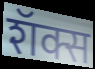
शॅक्स